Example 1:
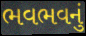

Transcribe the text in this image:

ભવભવનું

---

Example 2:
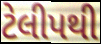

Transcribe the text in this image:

ટેલીપથી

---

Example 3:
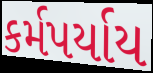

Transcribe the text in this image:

કર્મપર્યાય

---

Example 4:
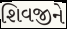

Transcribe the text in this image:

શિવજીને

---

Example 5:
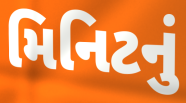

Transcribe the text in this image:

મિનિટનું